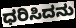
ಧರಿಸಿದನು